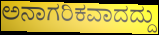
ಅನಾಗರಿಕವಾದದ್ದು